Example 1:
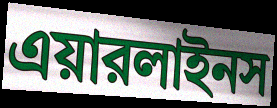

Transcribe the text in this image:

এয়ারলাইনস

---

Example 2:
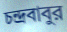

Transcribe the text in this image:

চন্দ্রবাবুর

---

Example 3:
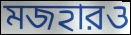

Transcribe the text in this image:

মজহারও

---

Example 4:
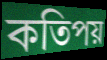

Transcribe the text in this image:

কতিপয়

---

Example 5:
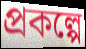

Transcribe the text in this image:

প্রকল্পে